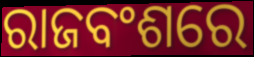
ରାଜବଂଶରେ